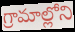
గ్రామాల్లోని